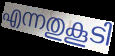
എന്നതുകൂടി